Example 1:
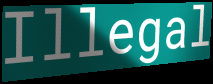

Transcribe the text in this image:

Illegal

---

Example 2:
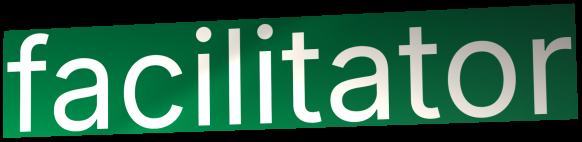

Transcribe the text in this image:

facilitator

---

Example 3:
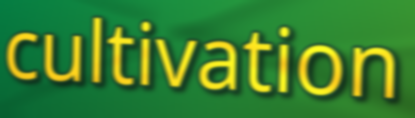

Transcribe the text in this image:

cultivation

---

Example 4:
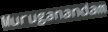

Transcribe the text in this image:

Muruganandam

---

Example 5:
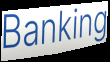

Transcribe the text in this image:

Banking